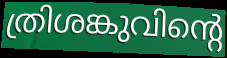
ത്രിശങ്കുവിന്റെ